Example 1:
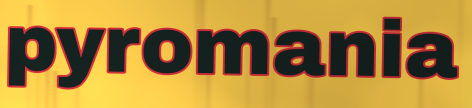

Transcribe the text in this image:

pyromania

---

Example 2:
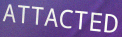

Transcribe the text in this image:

ATTACTED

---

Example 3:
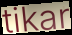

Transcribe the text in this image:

tikar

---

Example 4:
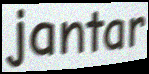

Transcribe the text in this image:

jantar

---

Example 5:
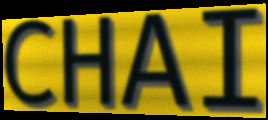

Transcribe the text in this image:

CHAI